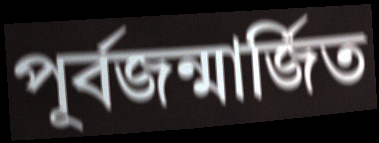
পূৰ্বজন্মাৰ্জিত